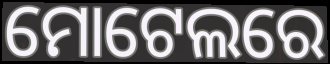
ମୋଟେଲରେ